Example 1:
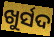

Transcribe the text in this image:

ଖୁର୍ସଦ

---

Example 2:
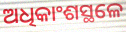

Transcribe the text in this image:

ଅଧିକାଂଶସ୍ଥଳେ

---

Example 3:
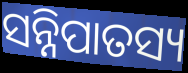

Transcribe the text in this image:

ସନ୍ନିପାତସ୍ୟ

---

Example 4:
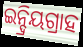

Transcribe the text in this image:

ଇନ୍ଦ୍ରିୟଗ୍ରାହ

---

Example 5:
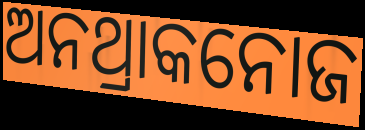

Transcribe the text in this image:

ଅନଥ୍ରାକନୋଜ